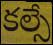
కల్సే